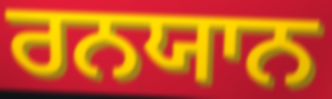
ਰਨਯਾਨ